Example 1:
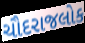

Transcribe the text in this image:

ચૌદરાજલોક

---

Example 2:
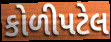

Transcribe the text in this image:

કોળીપટેલ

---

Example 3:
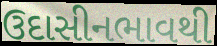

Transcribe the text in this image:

ઉદાસીનભાવથી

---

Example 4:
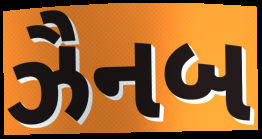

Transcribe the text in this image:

ઝૈનબ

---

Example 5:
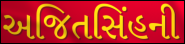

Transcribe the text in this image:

અજિતસિંહની